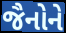
જૈનોને